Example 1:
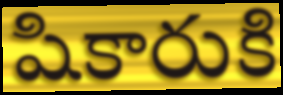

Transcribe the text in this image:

షికారుకి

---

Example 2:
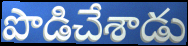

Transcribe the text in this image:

పొడిచేశాడు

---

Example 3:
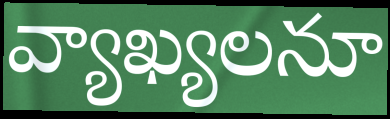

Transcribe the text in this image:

వ్యాఖ్యలనూ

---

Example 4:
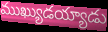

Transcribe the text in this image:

ముఖ్యుడయ్యాడు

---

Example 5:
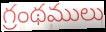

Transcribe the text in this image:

గ్రంథములు